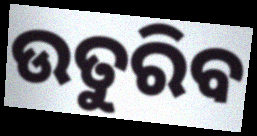
ଉତୁରିବ